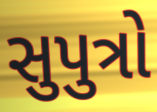
સુપુત્રો